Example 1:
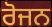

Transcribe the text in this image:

ਰੋਜਨ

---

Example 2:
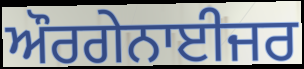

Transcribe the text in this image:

ਔਰਗੇਨਾਈਜਰ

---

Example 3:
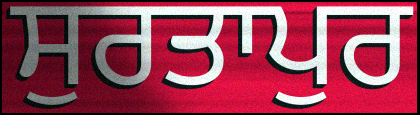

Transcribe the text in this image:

ਸੁਰਤਾਪੁਰ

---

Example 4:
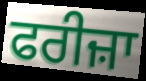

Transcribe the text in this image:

ਫਰੀਜ਼ਾ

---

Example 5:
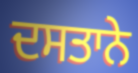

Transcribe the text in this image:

ਦਸਤਾਨੇ